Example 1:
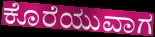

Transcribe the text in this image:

ಕೊರೆಯುವಾಗ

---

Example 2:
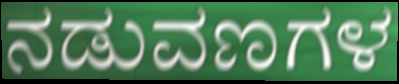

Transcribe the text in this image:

ನಡುವಣಗಳ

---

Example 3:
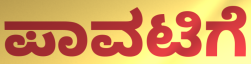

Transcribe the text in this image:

ಪಾವಟಿಗೆ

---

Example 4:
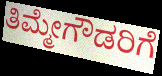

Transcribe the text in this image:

ತಿಮ್ಮೇಗೌಡರಿಗೆ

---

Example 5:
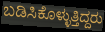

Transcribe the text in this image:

ಬಡಿಸಿಕೊಳ್ಳುತ್ತಿದ್ದರು